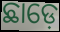
ଛାଡ଼େ